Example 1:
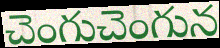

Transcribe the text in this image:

చెంగుచెంగున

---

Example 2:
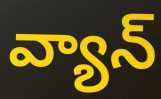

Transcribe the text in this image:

వ్యాన్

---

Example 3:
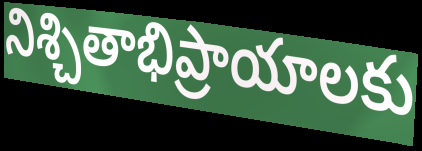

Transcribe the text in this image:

నిశ్చితాభిప్రాయాలకు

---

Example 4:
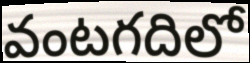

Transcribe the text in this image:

వంటగదిలో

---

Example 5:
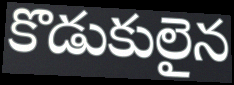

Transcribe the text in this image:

కొడుకులైన